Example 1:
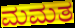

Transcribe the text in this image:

ಮಮತ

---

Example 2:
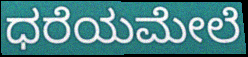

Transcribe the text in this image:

ಧರೆಯಮೇಲೆ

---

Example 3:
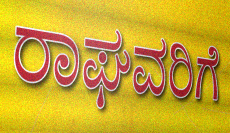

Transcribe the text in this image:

ರಾಘವರಿಗೆ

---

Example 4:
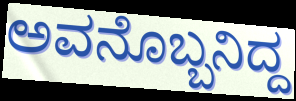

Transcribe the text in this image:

ಅವನೊಬ್ಬನಿದ್ದ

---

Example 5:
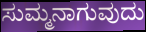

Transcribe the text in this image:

ಸುಮ್ಮನಾಗುವುದು